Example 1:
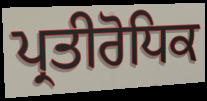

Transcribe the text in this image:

ਪ੍ਰਤੀਰੋਧਿਕ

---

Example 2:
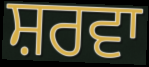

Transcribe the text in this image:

ਸ਼ਰਵਾ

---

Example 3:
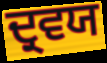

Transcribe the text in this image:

ਦ੍ਰਵਯ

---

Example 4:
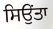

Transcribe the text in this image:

ਸਿਉਂਤਾ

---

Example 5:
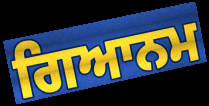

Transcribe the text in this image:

ਗਿਆਨਮ